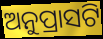
ଅନୁପ୍ରାସଟି